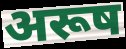
अरूष